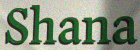
Shana